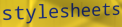
stylesheets